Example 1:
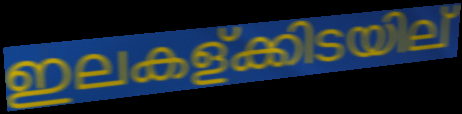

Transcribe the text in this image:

ഇലകള്ക്കിടയില്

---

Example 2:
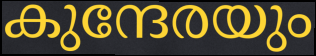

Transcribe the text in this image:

കുന്ദേരയും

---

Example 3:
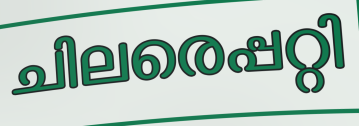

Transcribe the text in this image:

ചിലരെപ്പറ്റി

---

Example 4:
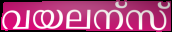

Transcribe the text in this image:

വയലന്സ്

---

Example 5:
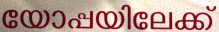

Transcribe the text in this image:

യോപ്പയിലേക്ക്